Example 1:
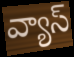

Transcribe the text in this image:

వ్యాస్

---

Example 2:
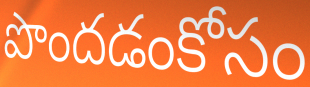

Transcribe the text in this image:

పొందడంకోసం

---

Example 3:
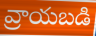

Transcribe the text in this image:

వ్రాయబడి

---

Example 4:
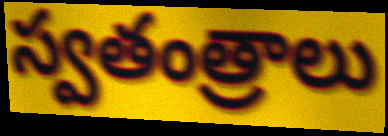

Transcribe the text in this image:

స్వతంత్రాలు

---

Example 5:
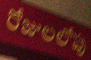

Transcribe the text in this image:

రోజులలోపు